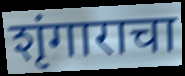
शृंगाराचा